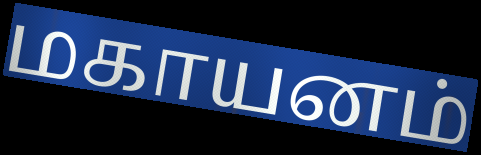
மகாயனம்